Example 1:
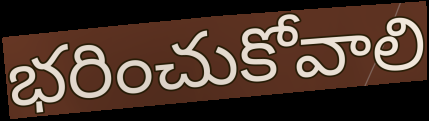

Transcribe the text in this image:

భరించుకోవాలి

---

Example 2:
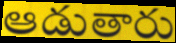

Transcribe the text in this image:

ఆడుతారు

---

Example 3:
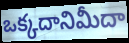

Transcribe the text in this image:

ఒక్కదానిమీదా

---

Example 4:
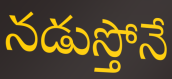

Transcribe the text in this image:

నడుస్తోనే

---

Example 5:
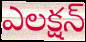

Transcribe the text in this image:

ఎలక్షన్